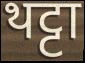
थट्टा